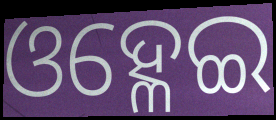
ଓହ୍ଳେଇ